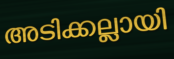
അടിക്കല്ലായി